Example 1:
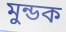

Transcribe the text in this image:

মুন্ডক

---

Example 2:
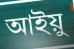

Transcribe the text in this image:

আইয়ু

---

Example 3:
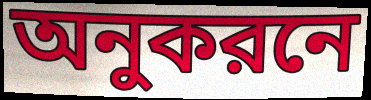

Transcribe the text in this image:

অনুকরনে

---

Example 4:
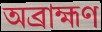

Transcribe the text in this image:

অব্রাহ্মণ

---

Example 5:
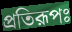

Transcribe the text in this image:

প্রতিরূপঃ